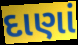
દાણાં